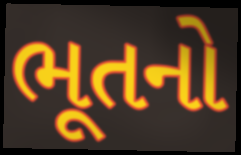
ભૂતનો